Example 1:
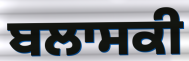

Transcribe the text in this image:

ਬਲਾਸਕੀ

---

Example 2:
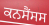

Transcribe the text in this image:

ਕਨਸੈਂਸਸ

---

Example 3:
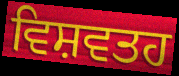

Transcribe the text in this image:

ਵਿਸ਼ਵਤਹ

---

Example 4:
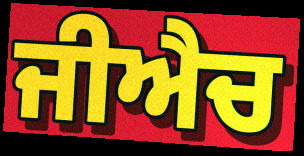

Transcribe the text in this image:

ਜੀਐਚ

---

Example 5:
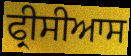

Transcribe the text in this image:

ਫ੍ਰੀਸੀਆਸ